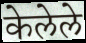
केलेले